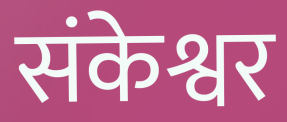
संकेश्वर